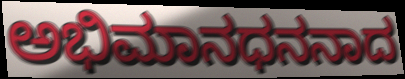
ಅಭಿಮಾನಧನನಾದ